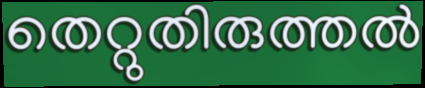
തെറ്റുതിരുത്തൽ